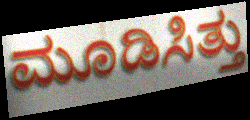
ಮೂಡಿಸಿತ್ತು